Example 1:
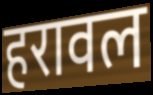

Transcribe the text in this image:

हरावल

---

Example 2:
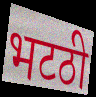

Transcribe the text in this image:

भटठी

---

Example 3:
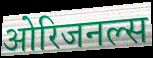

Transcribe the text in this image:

ओरिजनल्स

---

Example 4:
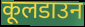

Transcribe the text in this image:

कूलडाउन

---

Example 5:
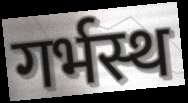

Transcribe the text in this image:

गर्भस्थ